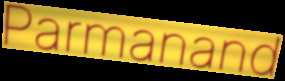
Parmanand